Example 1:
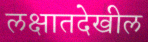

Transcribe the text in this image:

लक्षातदेखील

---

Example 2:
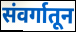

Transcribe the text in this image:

संवर्गातून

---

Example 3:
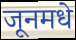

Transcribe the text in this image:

जूनमधे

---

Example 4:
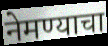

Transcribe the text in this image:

नेमण्याचा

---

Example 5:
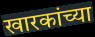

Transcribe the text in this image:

खारकांच्या